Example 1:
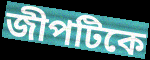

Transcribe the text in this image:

জীপটিকে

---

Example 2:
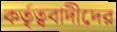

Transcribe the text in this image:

কর্তৃত্ববাদীদের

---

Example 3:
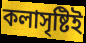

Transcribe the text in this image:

কলাসৃষ্টিই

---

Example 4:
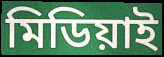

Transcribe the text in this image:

মিডিয়াই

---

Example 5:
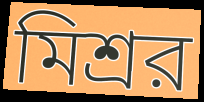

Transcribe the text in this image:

মিশ্রর